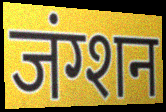
जंग्शन